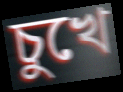
চুখে